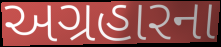
અગ્રહારના